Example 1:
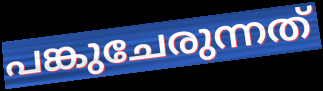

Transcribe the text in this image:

പങ്കുചേരുന്നത്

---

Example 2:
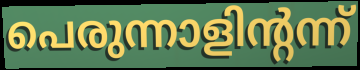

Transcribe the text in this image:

പെരുന്നാളിന്റന്ന്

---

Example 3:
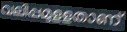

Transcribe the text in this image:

വലിപ്പമുളളതാണ്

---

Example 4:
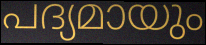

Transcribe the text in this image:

പദ്യമായും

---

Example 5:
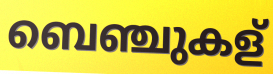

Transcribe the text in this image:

ബെഞ്ചുകള്